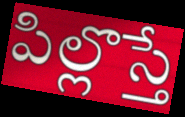
పిల్లొస్తే